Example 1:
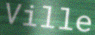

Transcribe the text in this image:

Ville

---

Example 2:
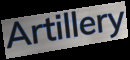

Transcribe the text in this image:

Artillery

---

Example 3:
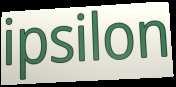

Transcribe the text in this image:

ipsilon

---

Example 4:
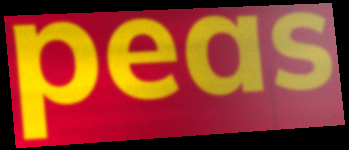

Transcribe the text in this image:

peas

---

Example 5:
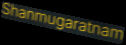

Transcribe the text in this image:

Shanmugaratnam